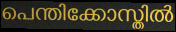
പെന്തിക്കോസ്തിൽ